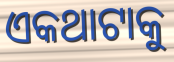
ଏକଥାଟାକୁ